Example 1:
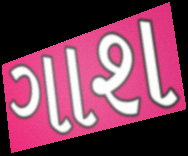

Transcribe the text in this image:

ગાશ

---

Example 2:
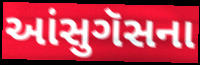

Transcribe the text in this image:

આંસુગૅસના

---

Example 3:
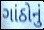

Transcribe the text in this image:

ગાંઠોનું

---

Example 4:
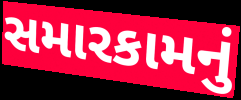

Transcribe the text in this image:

સમારકામનું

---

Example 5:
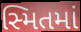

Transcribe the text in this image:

સ્મિતમાં